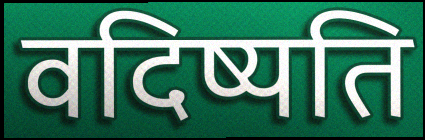
वदिष्यति